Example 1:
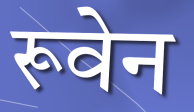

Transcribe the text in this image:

रूवेन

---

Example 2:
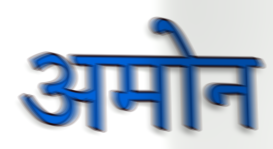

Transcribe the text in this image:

अमोन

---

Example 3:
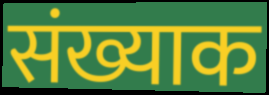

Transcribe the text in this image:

संख्याक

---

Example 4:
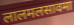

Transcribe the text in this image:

लालमलसावमा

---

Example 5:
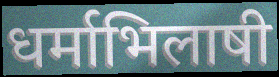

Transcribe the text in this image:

धर्माभिलाषी